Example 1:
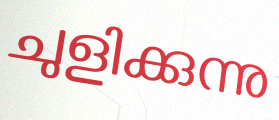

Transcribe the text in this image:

ചുളിക്കുന്നു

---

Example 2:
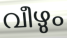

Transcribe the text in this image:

വീഴും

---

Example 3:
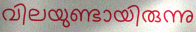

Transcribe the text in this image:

വിലയുണ്ടായിരുന്നു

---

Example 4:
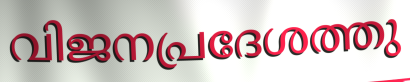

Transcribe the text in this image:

വിജനപ്രദേശത്തു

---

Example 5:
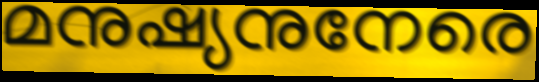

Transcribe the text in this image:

മനുഷ്യനുനേരെ